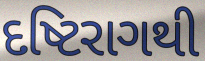
દષ્ટિરાગથી